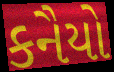
કનૈયો